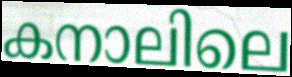
കനാലിലെ